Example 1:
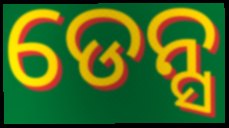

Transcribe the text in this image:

ଡେନ୍ସ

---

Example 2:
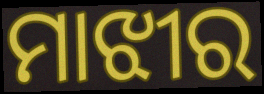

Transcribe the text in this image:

ମାଝୀର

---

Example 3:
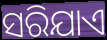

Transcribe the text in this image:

ସରିଯାଏ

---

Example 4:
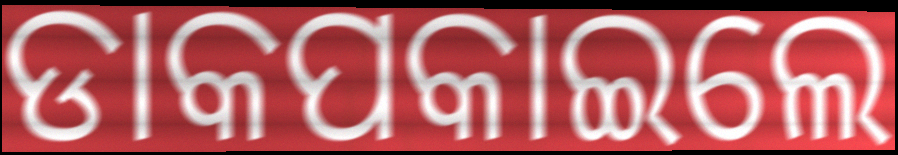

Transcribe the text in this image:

ଡାକପକାଇଲେ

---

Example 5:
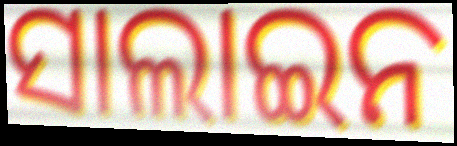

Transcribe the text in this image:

ସାଲାଇନ